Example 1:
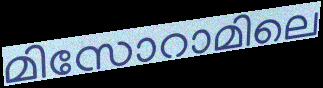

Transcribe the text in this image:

മിസോറാമിലെ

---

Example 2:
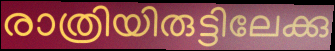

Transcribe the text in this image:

രാത്രിയിരുട്ടിലേക്കു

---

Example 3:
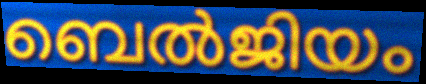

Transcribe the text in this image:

ബെൽജിയം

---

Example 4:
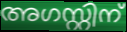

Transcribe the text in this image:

അഗസ്റ്റിന്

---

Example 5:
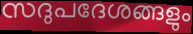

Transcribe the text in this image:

സദുപദേശങ്ങളും